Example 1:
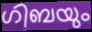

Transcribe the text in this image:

ഗിബയും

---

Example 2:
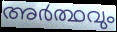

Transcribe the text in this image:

അർത്ഥവും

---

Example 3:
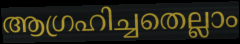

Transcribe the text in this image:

ആഗ്രഹിച്ചതെല്ലാം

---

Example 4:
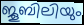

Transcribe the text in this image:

ജൂബിലിയും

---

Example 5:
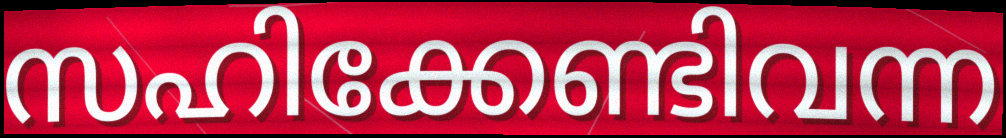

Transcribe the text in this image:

സഹിക്കേണ്ടിവന്ന